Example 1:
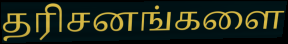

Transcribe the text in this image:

தரிசனங்களை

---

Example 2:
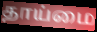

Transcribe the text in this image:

தாய்மை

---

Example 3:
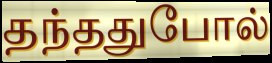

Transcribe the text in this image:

தந்ததுபோல்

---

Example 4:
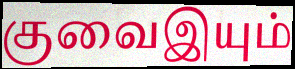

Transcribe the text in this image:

குவைஇயும்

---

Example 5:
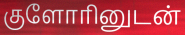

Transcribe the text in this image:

குளோரினுடன்